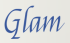
Glam